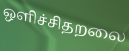
ஒளிச்சிதறலை